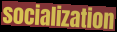
socialization